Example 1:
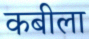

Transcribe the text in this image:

कबीला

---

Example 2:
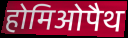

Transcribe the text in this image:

होमिओपैथ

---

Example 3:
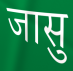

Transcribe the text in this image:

जासु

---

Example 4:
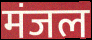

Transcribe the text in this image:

मंजल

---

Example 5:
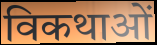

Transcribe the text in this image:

विकथाओं